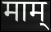
माम्